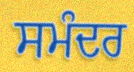
ਸਮੰਦਰ